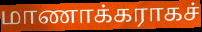
மாணாக்கராகச்